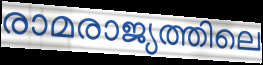
രാമരാജ്യത്തിലെ